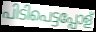
പിടിപെട്ടപ്പോള്